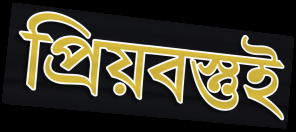
প্রিয়বস্তুই